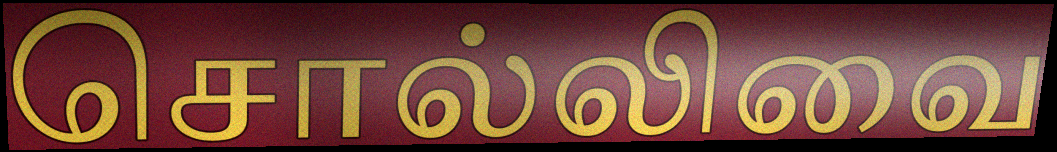
சொல்லிவை